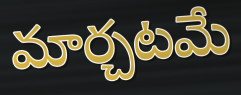
మార్చటమే